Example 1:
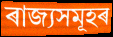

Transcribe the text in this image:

ৰাজ্যসমূহৰ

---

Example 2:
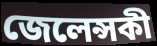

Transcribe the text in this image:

জেলেন্সকী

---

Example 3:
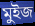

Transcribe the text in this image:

মুইজ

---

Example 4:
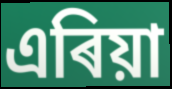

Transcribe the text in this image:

এৰিয়া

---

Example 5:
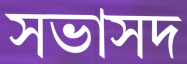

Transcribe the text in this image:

সভাসদ